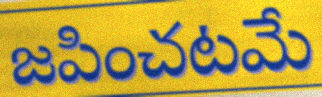
జపించటమే